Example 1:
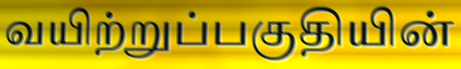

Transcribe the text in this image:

வயிற்றுப்பகுதியின்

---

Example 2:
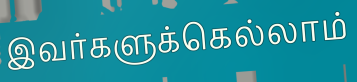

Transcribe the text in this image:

இவர்களுக்கெல்லாம்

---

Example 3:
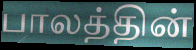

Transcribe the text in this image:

பாலத்தின்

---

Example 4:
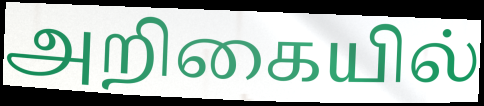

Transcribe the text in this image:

அறிகையில்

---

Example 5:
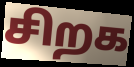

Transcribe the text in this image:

சிறக